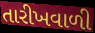
તારીખવાળી